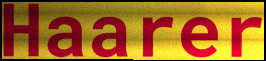
Haarer